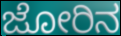
ಜೋರಿನ